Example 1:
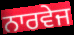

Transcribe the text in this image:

ਨਾਰਵੇਜ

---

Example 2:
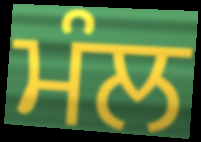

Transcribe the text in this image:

ਮੰਲ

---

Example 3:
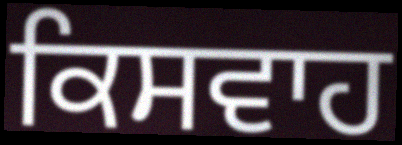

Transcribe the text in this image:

ਕਿਸਵਾਹ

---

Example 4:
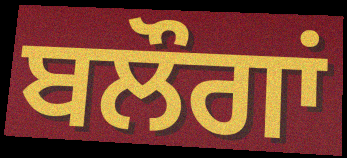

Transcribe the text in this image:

ਬਲੌਗਾਂ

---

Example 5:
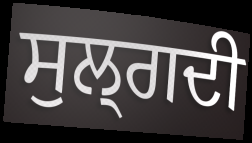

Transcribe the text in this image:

ਸੁਲ੍ਗਦੀ